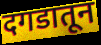
दगडातून